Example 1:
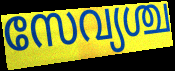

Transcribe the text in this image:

സേവ്യശ്ച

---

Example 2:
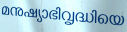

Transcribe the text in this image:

മനുഷ്യാഭിവൃദ്ധിയെ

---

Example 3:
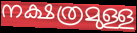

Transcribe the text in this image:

നക്ഷത്രമുള്ള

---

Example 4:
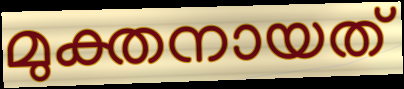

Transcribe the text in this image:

മുക്തനായത്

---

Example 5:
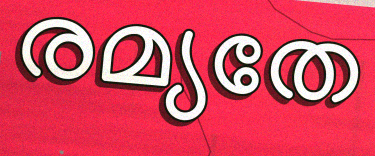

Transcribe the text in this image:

രമ്യതേ